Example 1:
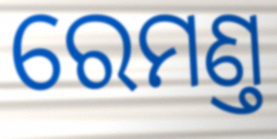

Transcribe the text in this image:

ରେମଣ୍ତ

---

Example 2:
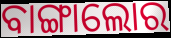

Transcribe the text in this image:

ବାଙ୍ଗାଲୋର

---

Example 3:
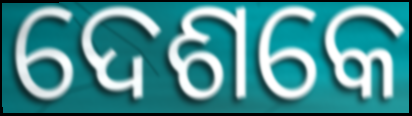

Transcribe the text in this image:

ଦେଶକେ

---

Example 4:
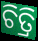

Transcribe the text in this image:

ଚିତ୍ରି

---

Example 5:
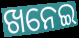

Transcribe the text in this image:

ଖନେଇ